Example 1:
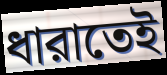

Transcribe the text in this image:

ধারাতেই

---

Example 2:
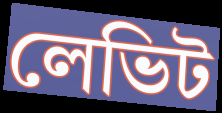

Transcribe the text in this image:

লেভিট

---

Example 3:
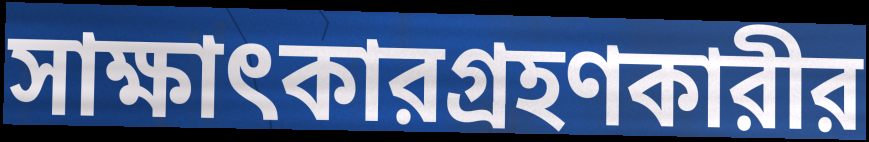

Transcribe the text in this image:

সাক্ষাৎকারগ্রহণকারীর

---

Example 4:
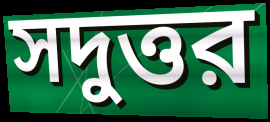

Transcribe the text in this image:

সদুত্তর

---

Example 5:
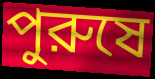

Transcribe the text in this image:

পুরুষে